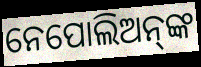
ନେପୋଲିଅନ୍‌ଙ୍କ